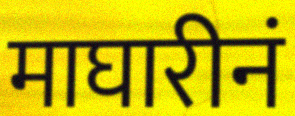
माघारीनं